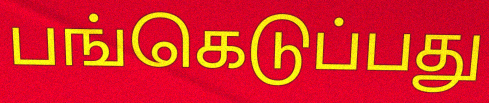
பங்கெடுப்பது